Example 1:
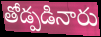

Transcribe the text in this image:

తోడ్పడినారు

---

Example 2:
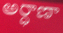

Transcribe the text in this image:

అర్ధాణా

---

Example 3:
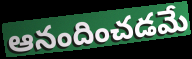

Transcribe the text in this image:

ఆనందించడమే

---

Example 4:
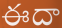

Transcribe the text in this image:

ఈదా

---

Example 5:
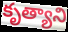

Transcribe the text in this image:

కృత్యాని